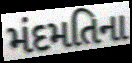
મંદમતિના